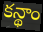
కన్థాం